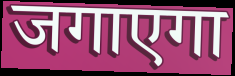
जगाएगा